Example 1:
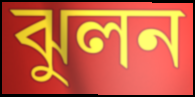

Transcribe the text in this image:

ঝুলন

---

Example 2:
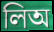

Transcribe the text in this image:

লিঅ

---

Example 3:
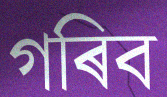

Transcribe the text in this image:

গৰিব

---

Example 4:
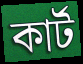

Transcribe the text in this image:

কাৰ্ট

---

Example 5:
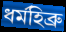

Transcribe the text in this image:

ধৰ্মহিব্ৰু